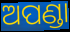
ଅପଣ୍ଡା